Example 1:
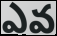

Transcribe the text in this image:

ఎవ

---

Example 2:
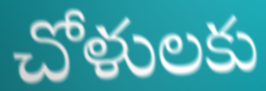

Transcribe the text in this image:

చోళులకు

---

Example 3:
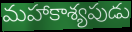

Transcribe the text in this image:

మహాకాశ్యపుడు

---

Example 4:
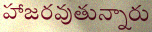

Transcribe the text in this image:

హాజరవుతున్నారు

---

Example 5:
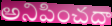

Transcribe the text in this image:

అనిపించదా